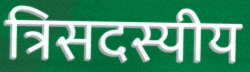
त्रिसदस्यीय